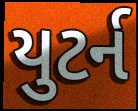
યુટર્ન